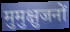
मुमुक्षुजनों